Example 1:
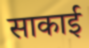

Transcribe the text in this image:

साकाई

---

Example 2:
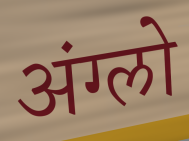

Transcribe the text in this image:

अंग्लो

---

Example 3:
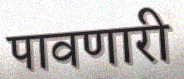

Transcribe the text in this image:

पावणारी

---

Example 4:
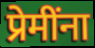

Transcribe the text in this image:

प्रेमींना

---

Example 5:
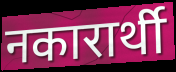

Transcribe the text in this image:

नकारार्थी